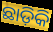
ଛାଡ଼ିକି